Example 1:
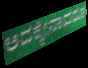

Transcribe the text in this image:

ಅದಕ್ಕೇನಾದರೂ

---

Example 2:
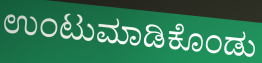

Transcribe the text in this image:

ಉಂಟುಮಾಡಿಕೊಂಡು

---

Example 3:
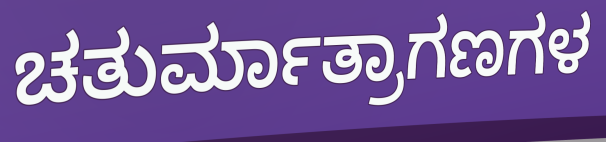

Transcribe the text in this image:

ಚತುರ್ಮಾತ್ರಾಗಣಗಳ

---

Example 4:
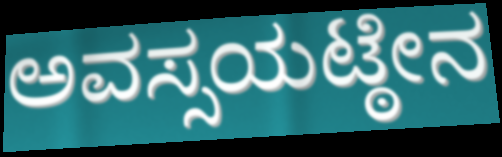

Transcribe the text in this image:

ಅವಸ್ಸಯಟ್ಠೇನ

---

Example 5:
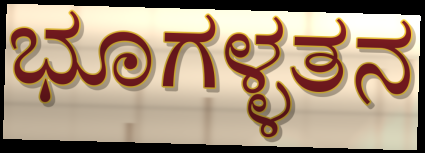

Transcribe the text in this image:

ಭೂಗಳ್ಳತನ